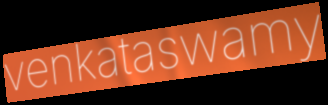
venkataswamy